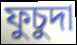
ফুচুদা